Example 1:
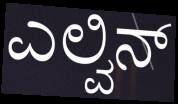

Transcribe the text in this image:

ಎಲ್ವಿನ್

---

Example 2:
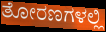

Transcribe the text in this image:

ತೋರಣಗಳಲ್ಲಿ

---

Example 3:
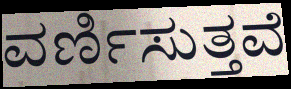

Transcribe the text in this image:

ವರ್ಣಿಸುತ್ತವೆ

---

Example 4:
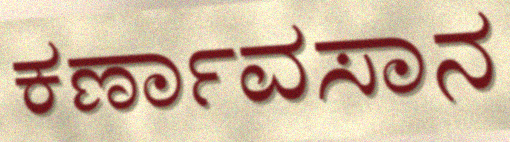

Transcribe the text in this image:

ಕರ್ಣಾವಸಾನ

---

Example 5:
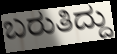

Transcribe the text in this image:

ಬರುತಿದ್ದು